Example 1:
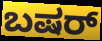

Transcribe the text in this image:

ಬಷರ್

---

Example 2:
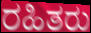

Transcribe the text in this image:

ರಹಿತರು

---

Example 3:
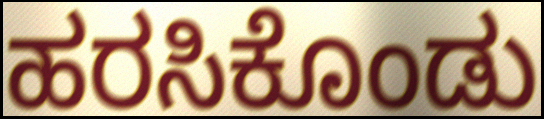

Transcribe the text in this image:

ಹರಸಿಕೊಂಡು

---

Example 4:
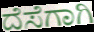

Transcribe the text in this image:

ದೆಸೆಗಾಗಿ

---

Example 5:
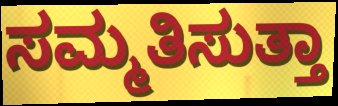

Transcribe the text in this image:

ಸಮ್ಮತಿಸುತ್ತಾ